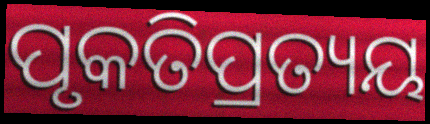
ପୃକତିପ୍ରତ୍ୟୟ